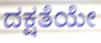
ದಕ್ಷತೆಯೇ